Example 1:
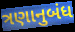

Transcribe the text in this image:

ત્રણાનુબંધ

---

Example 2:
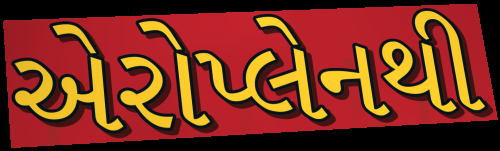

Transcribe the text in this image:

એરોપ્લેનથી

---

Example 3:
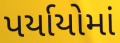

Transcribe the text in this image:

પર્યાયોમાં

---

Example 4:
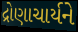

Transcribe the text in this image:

દ્રોણાચાર્યને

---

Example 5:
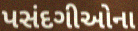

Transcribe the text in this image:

પસંદગીઓના